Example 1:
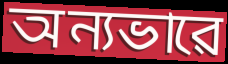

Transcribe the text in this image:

অন্যভাৱে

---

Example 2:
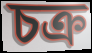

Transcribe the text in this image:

চক্ৰ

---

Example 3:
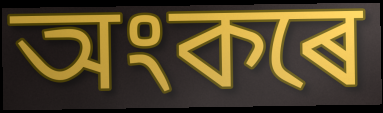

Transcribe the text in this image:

অংকৰে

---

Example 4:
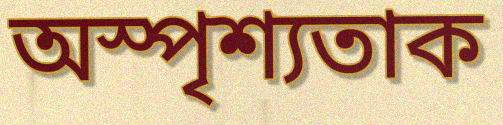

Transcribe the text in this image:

অস্পৃশ্যতাক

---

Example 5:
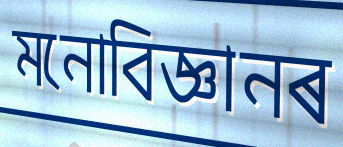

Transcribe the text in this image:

মনোবিজ্ঞানৰ